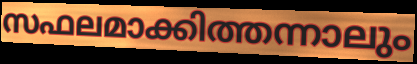
സഫലമാക്കിത്തന്നാലും